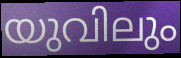
യുവിലും